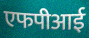
एफपीआई